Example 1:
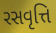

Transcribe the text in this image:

રસવૃત્તિ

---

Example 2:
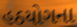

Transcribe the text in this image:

હઠયોગના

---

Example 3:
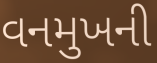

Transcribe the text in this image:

વનમુખની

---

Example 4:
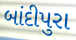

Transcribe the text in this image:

બાંદીપુરા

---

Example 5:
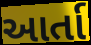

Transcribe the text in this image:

આર્તા